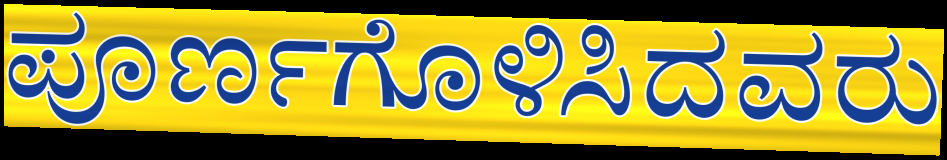
ಪೂರ್ಣಗೊಳಿಸಿದವರು